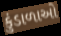
કુંડાળાઓ